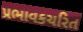
પ્રભાવકચરિત